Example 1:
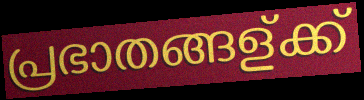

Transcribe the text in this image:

പ്രഭാതങ്ങള്ക്ക്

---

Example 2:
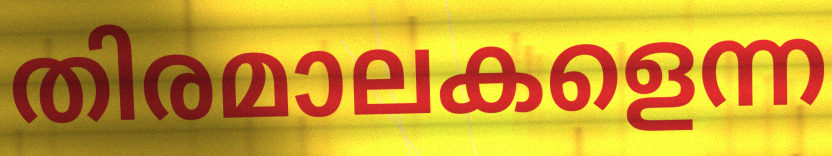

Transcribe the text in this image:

തിരമാലകളെന്ന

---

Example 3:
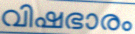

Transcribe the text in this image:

വിഷഭാരം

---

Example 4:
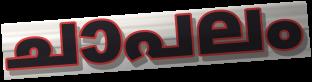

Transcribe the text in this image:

ചാപലം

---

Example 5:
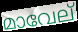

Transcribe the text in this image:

മാവേല്